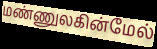
மண்ணுலகின்மேல்